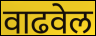
वाढवेल